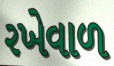
રખેવાળ